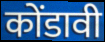
कोंडावी